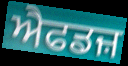
ਐਫਡਜ਼